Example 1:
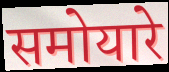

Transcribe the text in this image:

समोयारे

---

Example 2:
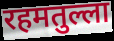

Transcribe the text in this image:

रहमतुल्ला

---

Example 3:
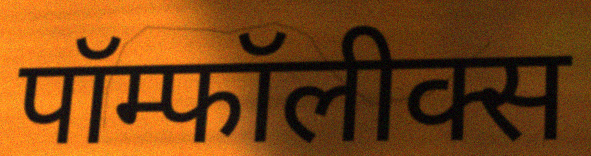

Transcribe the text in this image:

पॉम्फॉलीक्स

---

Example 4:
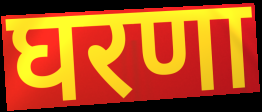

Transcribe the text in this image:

घरणा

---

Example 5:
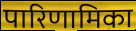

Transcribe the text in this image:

पारिणामिका